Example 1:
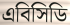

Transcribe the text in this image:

এবিসিডি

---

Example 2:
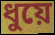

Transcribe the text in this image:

ধুয়ে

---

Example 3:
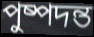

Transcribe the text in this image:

পুষ্পদন্ত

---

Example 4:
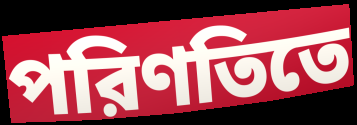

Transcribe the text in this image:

পরিণতিতে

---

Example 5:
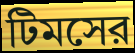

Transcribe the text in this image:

টিমসের